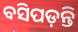
ବସିପଡ଼ନ୍ତି